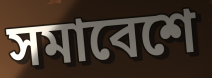
সমাবেশে